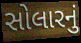
સોલારનું